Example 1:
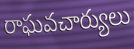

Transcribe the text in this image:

రాఘవచార్యులు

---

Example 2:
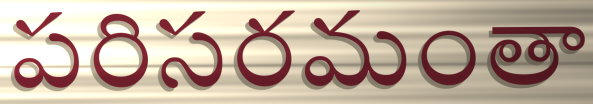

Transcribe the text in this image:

పరిసరమంతా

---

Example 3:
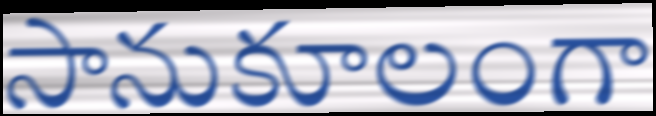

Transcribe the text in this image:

సానుకూలంగా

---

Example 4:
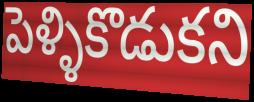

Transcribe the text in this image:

పెళ్ళికొడుకని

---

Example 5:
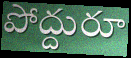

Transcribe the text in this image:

పోద్దురూ